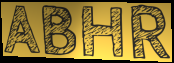
ABHR